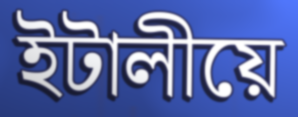
ইটালীয়ে